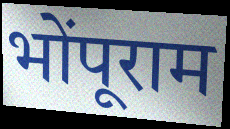
भोंपूराम